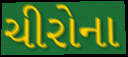
ચીરોના